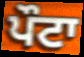
ਪੌਟਾ